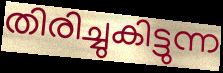
തിരിച്ചുകിട്ടുന്ന